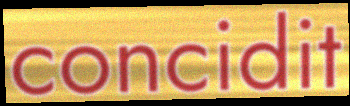
concidit